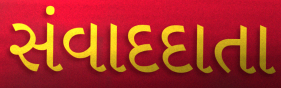
સંવાદદાતા